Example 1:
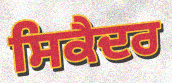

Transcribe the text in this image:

ਸਿਕੈਦਰ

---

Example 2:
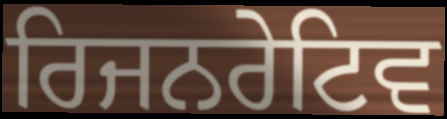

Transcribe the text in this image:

ਰਿਜਨਰੇਟਿਵ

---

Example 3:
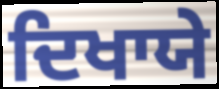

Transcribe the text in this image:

ਦਿਖਾਯੇ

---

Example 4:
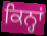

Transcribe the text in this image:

ਕਿਨ੍ਹਾਂ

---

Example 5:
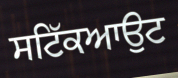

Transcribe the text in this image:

ਸਟਿੱਕਆਉਟ